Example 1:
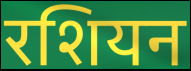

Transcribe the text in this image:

रशियन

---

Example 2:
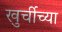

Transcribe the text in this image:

खुर्चीच्या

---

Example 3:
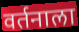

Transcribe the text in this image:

वर्तनाला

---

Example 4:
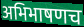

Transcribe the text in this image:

अभिभाषणच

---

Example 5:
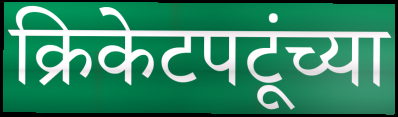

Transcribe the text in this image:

क्रिकेटपटूंच्या